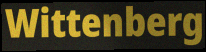
Wittenberg